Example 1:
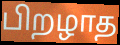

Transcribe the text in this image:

பிறழாத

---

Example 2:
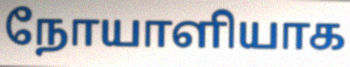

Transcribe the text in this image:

நோயாளியாக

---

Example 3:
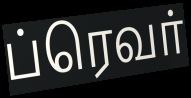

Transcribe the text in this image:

ப்ரெவர்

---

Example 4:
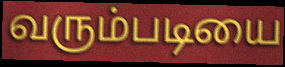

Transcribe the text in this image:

வரும்படியை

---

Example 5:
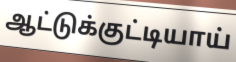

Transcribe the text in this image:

ஆட்டுக்குட்டியாய்